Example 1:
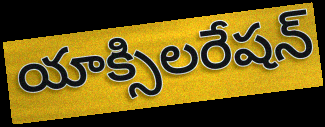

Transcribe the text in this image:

యాక్సిలరేషన్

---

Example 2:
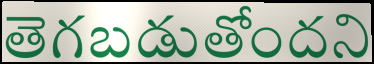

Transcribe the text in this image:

తెగబడుతోందని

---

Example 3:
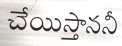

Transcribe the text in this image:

చేయిస్తాననీ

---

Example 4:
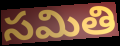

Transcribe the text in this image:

సమితి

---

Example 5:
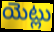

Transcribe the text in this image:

యెట్లు